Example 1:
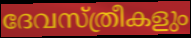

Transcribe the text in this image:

ദേവസ്ത്രീകളും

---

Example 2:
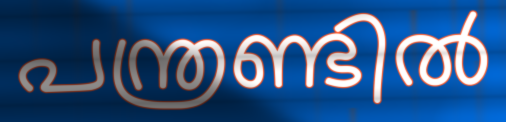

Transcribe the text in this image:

പന്ത്രണ്ടിൽ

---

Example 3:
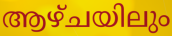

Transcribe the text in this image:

ആഴ്ചയിലും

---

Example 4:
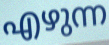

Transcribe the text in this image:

എഴുന്ന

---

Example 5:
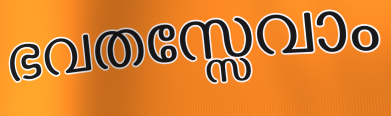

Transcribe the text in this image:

ഭവതസ്സേവാം